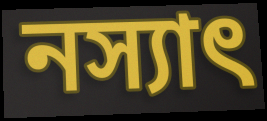
নস্যাৎ